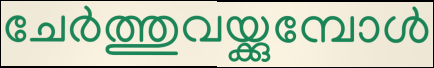
ചേർത്തുവയ്ക്കുമ്പോൾ